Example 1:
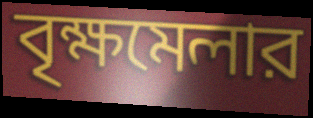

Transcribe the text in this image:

বৃক্ষমেলার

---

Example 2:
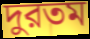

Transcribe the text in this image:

দুরতম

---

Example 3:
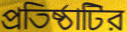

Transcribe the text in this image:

প্রতিষ্ঠাটির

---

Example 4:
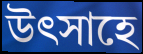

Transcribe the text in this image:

উৎসাহে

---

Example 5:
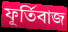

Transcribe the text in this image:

ফূর্তিবাজ